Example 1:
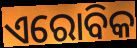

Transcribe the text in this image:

ଏରୋବିକ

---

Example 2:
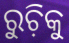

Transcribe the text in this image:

ରୁଚ଼ିକୁ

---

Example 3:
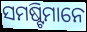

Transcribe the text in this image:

ସମଷ୍ଟିମାନେ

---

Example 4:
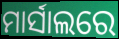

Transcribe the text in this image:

ମାର୍ସାଲରେ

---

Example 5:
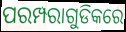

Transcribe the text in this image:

ପରମ୍ପରାଗୁଡିକରେ